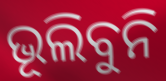
ଭୂଲିବୁନି